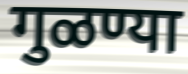
गुळण्या